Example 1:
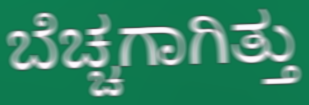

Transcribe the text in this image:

ಬೆಚ್ಚಗಾಗಿತ್ತು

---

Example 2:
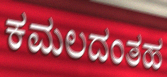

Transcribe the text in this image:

ಕಮಲದಂತಹ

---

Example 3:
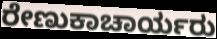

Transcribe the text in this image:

ರೇಣುಕಾಚಾರ್ಯರು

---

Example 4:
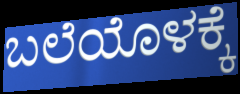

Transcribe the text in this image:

ಬಲೆಯೊಳಕ್ಕೆ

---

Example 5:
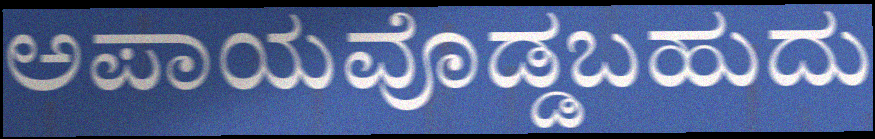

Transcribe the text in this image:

ಅಪಾಯವೊಡ್ಡಬಹುದು